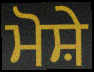
ਮੋਸ਼ੇ